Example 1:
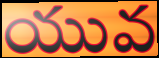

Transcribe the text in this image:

యువ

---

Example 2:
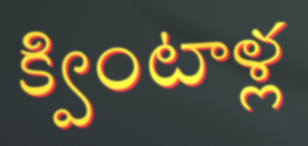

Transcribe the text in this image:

క్వింటాళ్ల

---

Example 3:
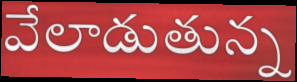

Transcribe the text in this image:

వేలాడుతున్న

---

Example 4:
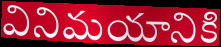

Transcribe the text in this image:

వినిమయానికి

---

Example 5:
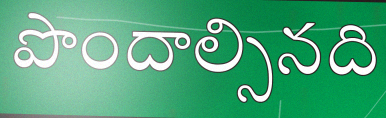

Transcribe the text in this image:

పొందాల్సినది